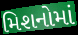
મિશનોમાં